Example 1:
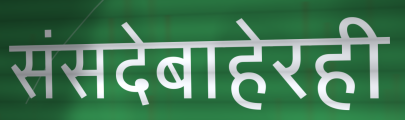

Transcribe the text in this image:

संसदेबाहेरही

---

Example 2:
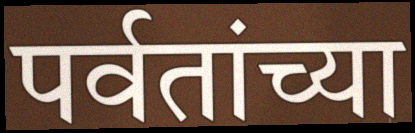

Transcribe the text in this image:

पर्वतांच्या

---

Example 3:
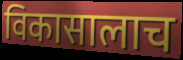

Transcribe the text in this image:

विकासालाच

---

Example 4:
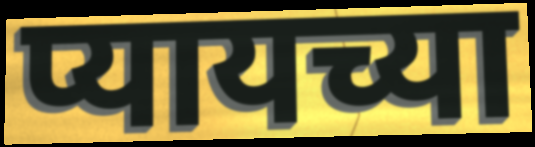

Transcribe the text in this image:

प्यायच्या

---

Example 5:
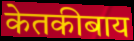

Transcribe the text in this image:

केतकीबाय